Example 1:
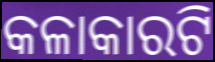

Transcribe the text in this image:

କଳାକାରଟି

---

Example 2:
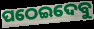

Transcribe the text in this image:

ପଠେଇଦେବୁ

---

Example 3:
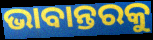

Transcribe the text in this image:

ଭାବାନ୍ତରକୁ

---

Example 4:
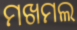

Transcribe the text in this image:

ମଖମଲ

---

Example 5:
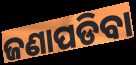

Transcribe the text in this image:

ଜଣାପଡିବା